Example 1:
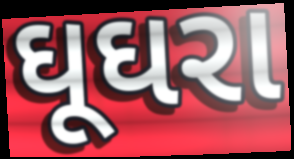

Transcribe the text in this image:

ઘૂઘરા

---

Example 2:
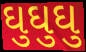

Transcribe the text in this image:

ઘુઘુઘુ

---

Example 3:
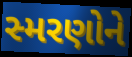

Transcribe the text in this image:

સ્મરણોને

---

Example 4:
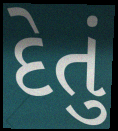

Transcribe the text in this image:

દેતું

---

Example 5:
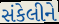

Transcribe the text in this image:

સંકેલીને